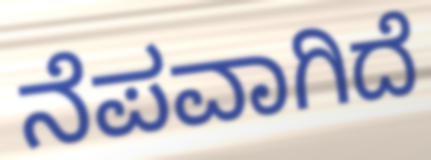
ನೆಪವಾಗಿದೆ